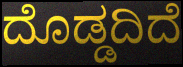
ದೊಡ್ಡದಿದೆ